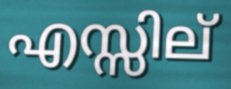
എസ്സില്